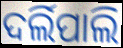
ଦର୍ଲିପାଲି